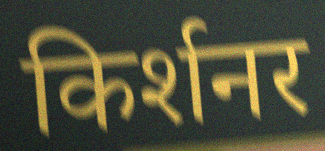
किर्शनर